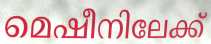
മെഷീനിലേക്ക്